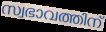
സ്വഭാവത്തിന്